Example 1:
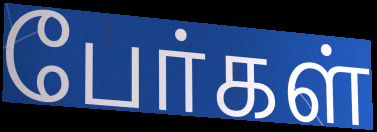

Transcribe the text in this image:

பேர்கள்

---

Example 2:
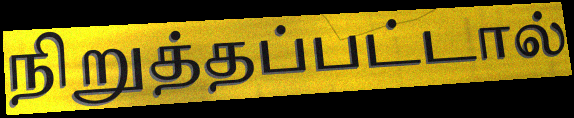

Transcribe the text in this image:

நிறுத்தப்பட்டால்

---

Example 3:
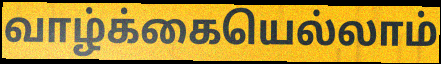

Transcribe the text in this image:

வாழ்க்கையெல்லாம்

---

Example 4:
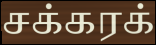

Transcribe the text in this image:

சக்கரக்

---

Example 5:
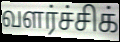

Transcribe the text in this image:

வளர்ச்சிக்